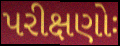
પરીક્ષણોઃ